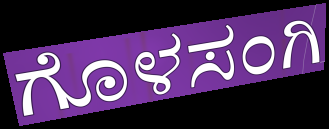
ಗೊಳಸಂಗಿ